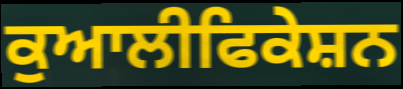
ਕੁਆਲੀਫਿਕੇਸ਼ਨ